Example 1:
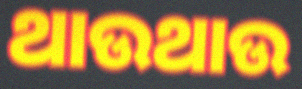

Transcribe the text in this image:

ଥାଉଥାଉ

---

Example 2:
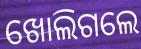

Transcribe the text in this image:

ଖୋଲିଗଲେ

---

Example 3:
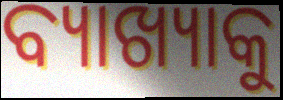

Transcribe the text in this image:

ବ୍ୟାଖ୍ୟାକୁ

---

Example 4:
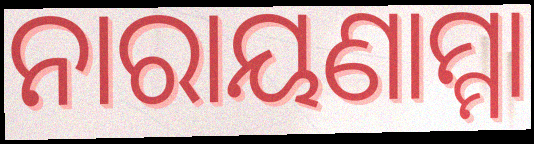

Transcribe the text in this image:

ନାରାୟଣାମ୍ମା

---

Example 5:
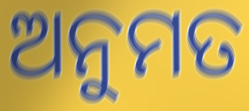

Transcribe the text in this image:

ଅନୁମତ